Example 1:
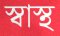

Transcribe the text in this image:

স্বাস্থ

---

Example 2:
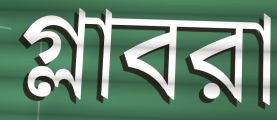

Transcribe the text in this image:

গ্লাবরা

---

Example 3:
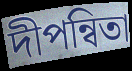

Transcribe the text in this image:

দীপন্বিতা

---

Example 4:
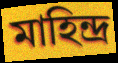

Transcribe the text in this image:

মাহিন্দ্র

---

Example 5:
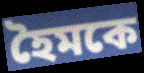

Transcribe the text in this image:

হৈমকে